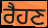
ਰੈਹਣ